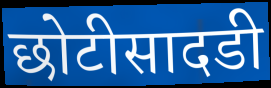
छोटीसादडी